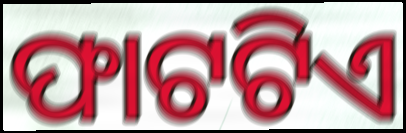
ଫାଟଟିଏ